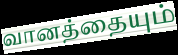
வானத்தையும்